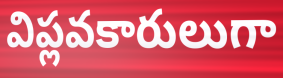
విప్లవకారులుగా